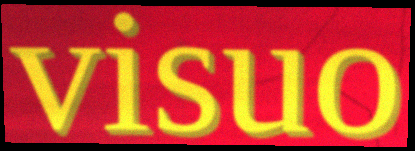
visuo